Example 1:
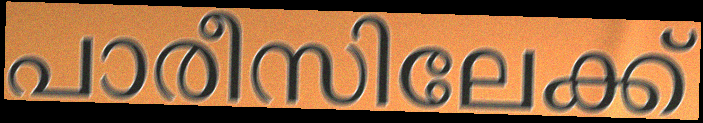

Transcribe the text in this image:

പാരീസിലേക്ക്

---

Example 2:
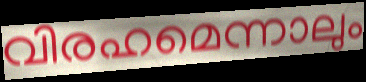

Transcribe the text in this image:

വിരഹമെന്നാലും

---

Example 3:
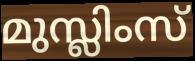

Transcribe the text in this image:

മുസ്ലിംസ്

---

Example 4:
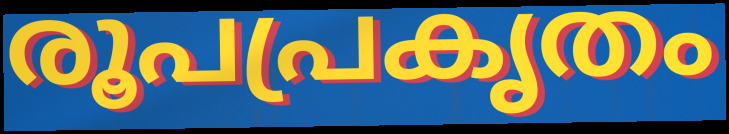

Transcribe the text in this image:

രൂപപ്രകൃതം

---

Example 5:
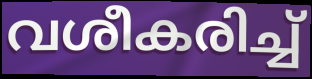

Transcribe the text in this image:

വശീകരിച്ച്